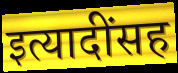
इत्यादींसह